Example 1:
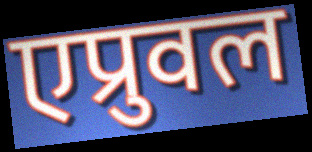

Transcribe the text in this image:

एप्रुवल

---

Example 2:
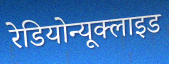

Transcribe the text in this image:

रेडियोन्यूक्लाइड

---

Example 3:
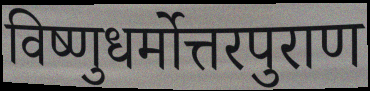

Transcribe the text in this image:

विष्णुधर्मोत्तरपुराण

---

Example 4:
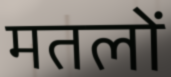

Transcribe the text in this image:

मतलों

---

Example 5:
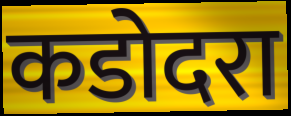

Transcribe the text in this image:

कडोदरा